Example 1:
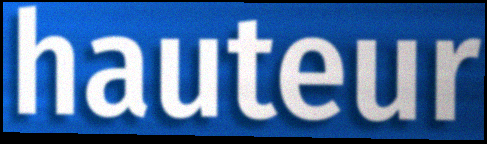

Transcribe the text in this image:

hauteur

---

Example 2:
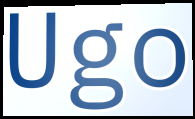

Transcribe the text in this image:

Ugo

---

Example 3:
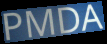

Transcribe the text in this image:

PMDA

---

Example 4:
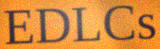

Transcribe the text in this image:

EDLCs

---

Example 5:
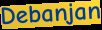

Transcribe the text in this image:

Debanjan